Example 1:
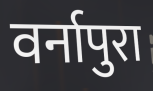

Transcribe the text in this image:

वर्नापुरा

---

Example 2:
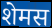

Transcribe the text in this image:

शेमस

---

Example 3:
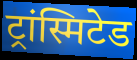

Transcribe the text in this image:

ट्रांस्मिटेड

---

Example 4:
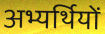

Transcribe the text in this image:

अभ्यर्थियों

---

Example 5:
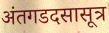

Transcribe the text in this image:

अंतगडदसासूत्र